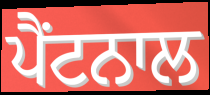
ਪੈਂਟਨਾਲ